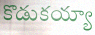
కొడుకయ్యా